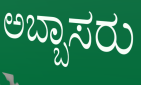
ಅಬ್ಬಾಸರು